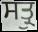
ਸਤ੍ਰੁ